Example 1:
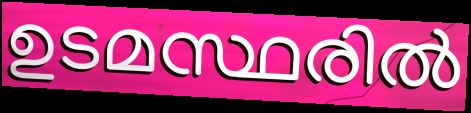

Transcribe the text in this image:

ഉടമസ്ഥരിൽ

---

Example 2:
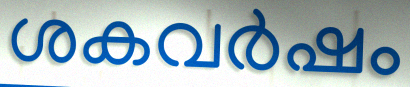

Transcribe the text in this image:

ശകവർഷം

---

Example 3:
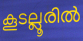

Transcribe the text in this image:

കൂടല്ലൂരിൽ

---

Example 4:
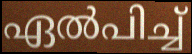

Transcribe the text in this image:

ഏൽപിച്ച്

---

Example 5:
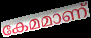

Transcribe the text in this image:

കേമമാണ്